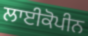
ਲਾਈਕੋਪੀਨ